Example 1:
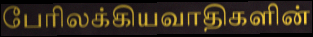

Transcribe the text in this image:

பேரிலக்கியவாதிகளின்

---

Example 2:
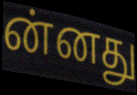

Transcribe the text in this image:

ன்னது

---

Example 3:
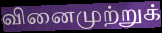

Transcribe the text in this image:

வினைமுற்றுக்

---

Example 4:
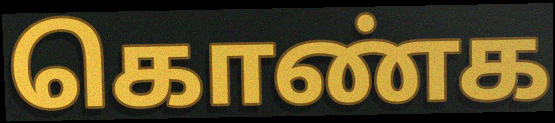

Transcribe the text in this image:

கொண்க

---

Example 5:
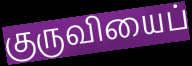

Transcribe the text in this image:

குருவியைப்